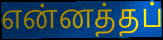
என்னத்தப்